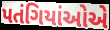
પતંગિયાંઓએ